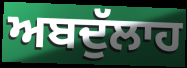
ਅਬਦੁੱਲਾਹ